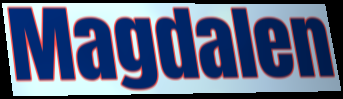
Magdalen